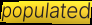
populated